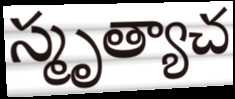
స్మృత్యాచ